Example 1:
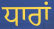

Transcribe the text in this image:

ਧਾਰਾਂ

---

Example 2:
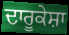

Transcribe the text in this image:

ਦਾਰੂਕੇਸ਼ਾ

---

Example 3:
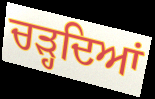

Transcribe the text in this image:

ਚੜ੍ਹਦਿਆਂ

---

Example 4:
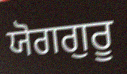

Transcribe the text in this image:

ਯੋਗਗੁਰੂ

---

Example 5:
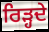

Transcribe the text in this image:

ਰਿੜ੍ਹਦੇ